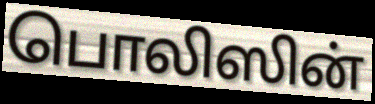
பொலிஸின்